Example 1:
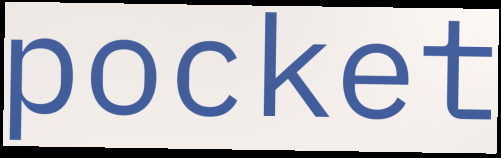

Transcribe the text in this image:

pocket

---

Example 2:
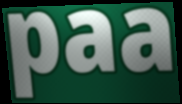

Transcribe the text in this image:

paa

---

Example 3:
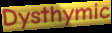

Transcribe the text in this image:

Dysthymic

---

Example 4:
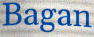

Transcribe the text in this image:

Bagan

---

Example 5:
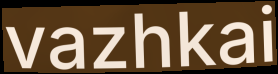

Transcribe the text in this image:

vazhkai